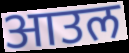
आउल